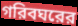
গরিবঘরের